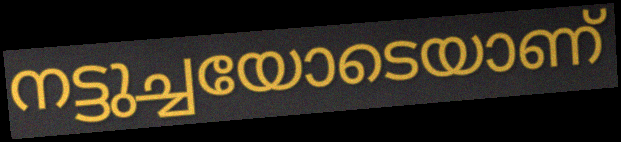
നട്ടുച്ചയോടെയാണ്